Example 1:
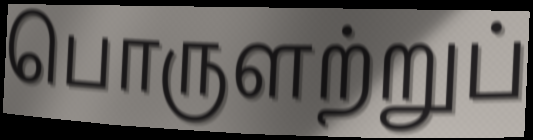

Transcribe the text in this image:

பொருளற்றுப்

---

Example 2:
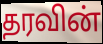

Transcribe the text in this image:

தரவின்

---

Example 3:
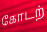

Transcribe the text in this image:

கோடற்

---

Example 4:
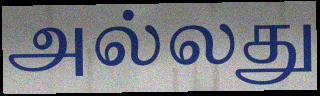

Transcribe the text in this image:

அல்லது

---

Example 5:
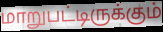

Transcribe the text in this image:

மாறுபட்டிருக்கும்